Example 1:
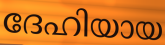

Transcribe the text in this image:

ദേഹിയായ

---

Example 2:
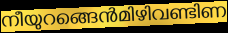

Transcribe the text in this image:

നീയുറങ്ങെൻമിഴിവണ്ടിണ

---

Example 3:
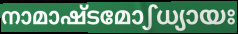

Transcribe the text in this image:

നാമാഷ്ടമോഽധ്യായഃ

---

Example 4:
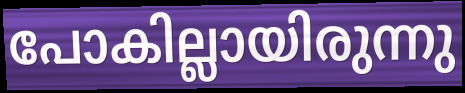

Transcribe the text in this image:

പോകില്ലായിരുന്നു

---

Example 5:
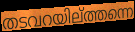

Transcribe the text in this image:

തടവറയില്ത്തന്നെ